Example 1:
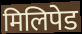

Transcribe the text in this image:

मिलिपेड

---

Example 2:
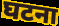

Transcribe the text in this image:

घटना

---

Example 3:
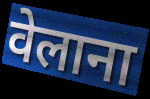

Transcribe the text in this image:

वेलाना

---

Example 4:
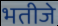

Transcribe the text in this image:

भतीजे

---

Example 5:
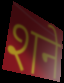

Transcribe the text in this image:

शने